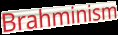
Brahminism